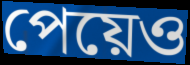
পেয়েও